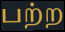
பற்ற